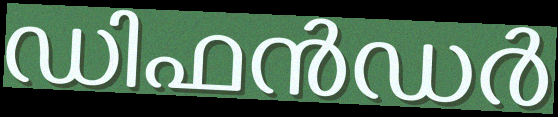
ഡിഫൻഡർ